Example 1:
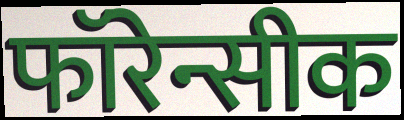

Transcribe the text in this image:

फॉरेन्सीक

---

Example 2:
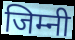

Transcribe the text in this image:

जिम्नी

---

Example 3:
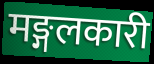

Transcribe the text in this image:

मङ्गलकारी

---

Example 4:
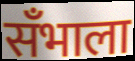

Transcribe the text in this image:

सँभाला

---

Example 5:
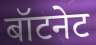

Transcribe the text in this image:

बॉटनेट